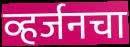
व्हर्जनचा